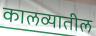
कालव्यातील